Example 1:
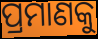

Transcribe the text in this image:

ପ୍ରମାଣକୁ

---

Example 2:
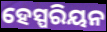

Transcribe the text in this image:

ହେସ୍ପରିୟନ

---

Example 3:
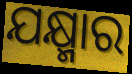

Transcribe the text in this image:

ଯକ୍ଷ୍ମାର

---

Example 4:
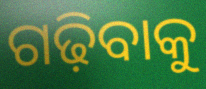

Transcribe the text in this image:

ଗଢ଼ିବାକୁ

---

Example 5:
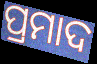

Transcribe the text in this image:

ପ୍ରମାଦ